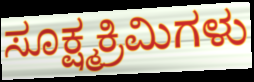
ಸೂಕ್ಷ್ಮಕ್ರಿಮಿಗಳು